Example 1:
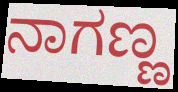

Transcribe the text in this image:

ನಾಗಣ್ಣ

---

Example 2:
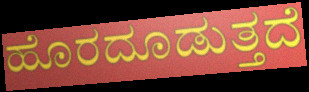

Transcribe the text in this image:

ಹೊರದೂಡುತ್ತದೆ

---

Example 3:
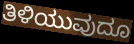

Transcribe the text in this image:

ತಿಳಿಯುವುದೂ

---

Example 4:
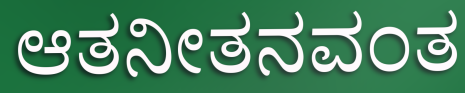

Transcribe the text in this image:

ಆತನೀತನವಂತ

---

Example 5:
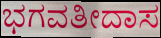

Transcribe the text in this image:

ಭಗವತೀದಾಸ